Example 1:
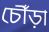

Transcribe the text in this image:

চৌঁড়া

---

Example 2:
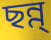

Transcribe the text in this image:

ছন্ন্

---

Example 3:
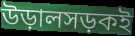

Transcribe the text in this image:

উড়ালসড়কই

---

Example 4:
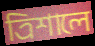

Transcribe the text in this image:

ত্রিশালে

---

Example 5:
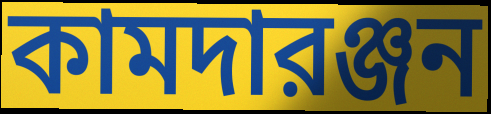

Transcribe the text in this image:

কামদারঞ্জন